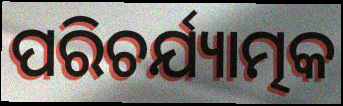
ପରିଚର୍ଯ୍ୟାତ୍ମକ